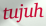
tujuh